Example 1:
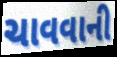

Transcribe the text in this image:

ચાવવાની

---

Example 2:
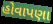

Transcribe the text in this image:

હોવાપણા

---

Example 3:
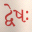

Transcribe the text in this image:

દ્વેષઃ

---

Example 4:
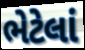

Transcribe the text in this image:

ભેટેલાં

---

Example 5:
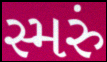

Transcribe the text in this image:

સ્મરું